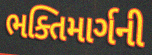
ભક્તિમાર્ગની